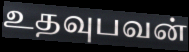
உதவுபவன்